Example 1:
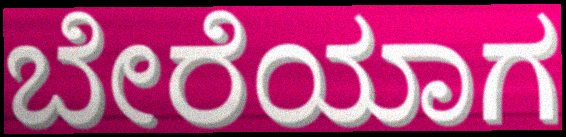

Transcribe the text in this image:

ಬೇರೆಯಾಗ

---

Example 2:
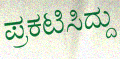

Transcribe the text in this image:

ಪ್ರಕಟಿಸಿದ್ದು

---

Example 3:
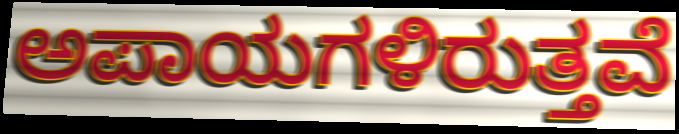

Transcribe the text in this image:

ಅಪಾಯಗಳಿರುತ್ತವೆ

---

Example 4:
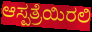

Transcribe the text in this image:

ಆಸ್ಪತ್ರೆಯಿರಲಿ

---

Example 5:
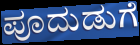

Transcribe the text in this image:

ಪೂದುಡುಗೆ